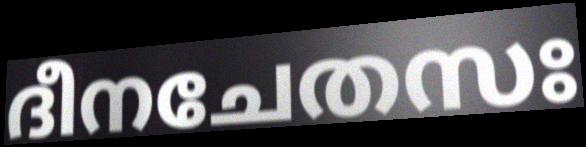
ദീനചേതസഃ